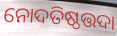
ନୋଦତିଷ୍ଠତ୍ତଦା